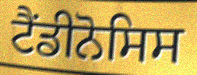
ਟੈਂਡੀਨੋਸਿਸ